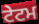
ਟੇਟਮ